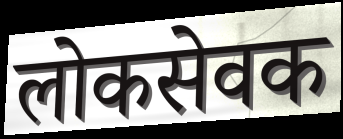
लोकसेवक